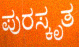
ಪುರಸ್ಕೃತ